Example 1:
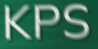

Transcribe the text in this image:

KPS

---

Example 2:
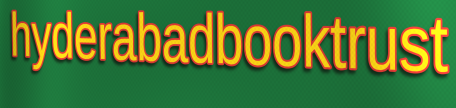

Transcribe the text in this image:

hyderabadbooktrust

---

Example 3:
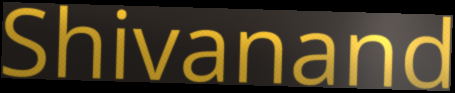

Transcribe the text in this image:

Shivanand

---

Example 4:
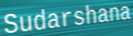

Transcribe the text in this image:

Sudarshana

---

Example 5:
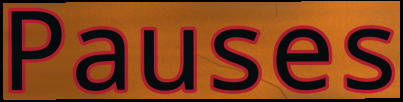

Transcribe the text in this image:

Pauses